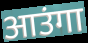
आउंगा